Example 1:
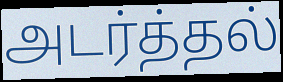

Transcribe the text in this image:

அடர்த்தல்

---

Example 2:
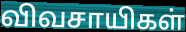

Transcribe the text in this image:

விவசாயிகள்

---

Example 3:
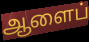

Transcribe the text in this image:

ஆளைப்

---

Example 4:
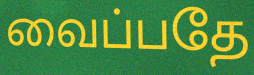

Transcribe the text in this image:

வைப்பதே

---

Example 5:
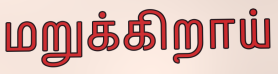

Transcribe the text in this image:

மறுக்கிறாய்